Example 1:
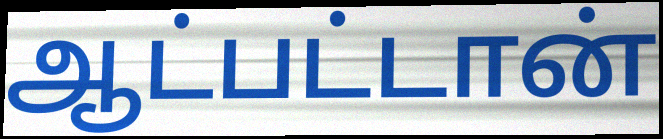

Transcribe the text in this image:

ஆட்பட்டான்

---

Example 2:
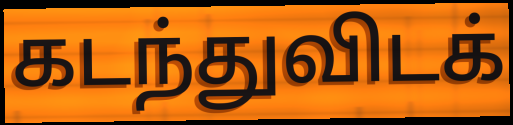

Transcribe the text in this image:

கடந்துவிடக்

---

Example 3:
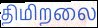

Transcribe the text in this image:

திமிறலை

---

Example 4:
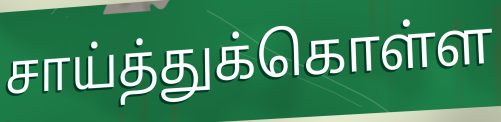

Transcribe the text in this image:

சாய்த்துக்கொள்ள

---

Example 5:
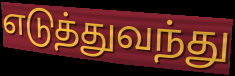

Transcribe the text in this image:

எடுத்துவந்து